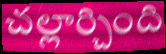
చల్లార్చింది